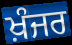
ਖ਼ੰਜਰ